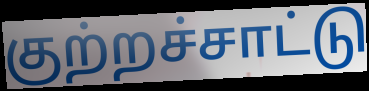
குற்றச்சாட்டு